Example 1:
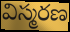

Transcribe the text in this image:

విస్మరణ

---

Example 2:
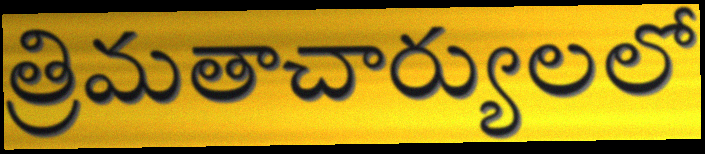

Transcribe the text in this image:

త్రిమతాచార్యులలో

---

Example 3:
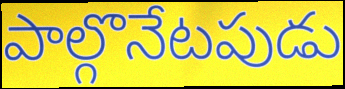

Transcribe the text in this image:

పాల్గొనేటపుడు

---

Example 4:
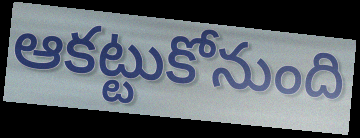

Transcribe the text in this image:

ఆకట్టుకోనుంది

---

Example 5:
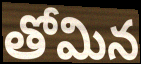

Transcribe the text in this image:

తోమిన